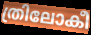
ത്രിലോകീ